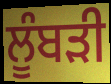
ਲੂੰਬੜੀ